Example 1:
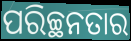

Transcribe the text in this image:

ପରିଚ୍ଛନତାର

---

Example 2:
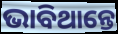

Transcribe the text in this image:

ଭାବିଥାନ୍ତେ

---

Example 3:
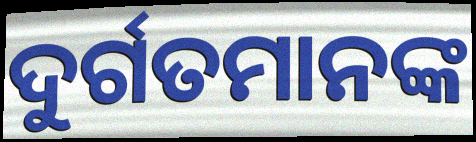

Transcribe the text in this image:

ଦୁର୍ଗତମାନଙ୍କ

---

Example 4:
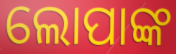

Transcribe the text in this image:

ଲୋପାଙ୍କ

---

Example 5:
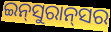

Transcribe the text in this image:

ଇନ୍‍ସୁରାନ୍‍ସର